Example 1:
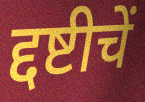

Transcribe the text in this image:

द्दष्टीचें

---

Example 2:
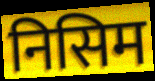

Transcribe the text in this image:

निसिम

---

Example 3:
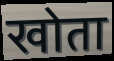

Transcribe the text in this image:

खोता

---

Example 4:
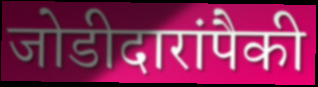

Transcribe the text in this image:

जोडीदारांपैकी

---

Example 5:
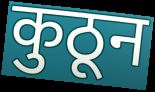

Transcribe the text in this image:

कुठून